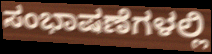
ಸಂಭಾಷಣೆಗಳಲ್ಲಿ